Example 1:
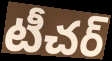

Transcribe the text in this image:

టీచర్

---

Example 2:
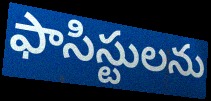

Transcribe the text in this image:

ఫాసిస్టులను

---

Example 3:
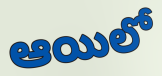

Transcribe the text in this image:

ఆయిలో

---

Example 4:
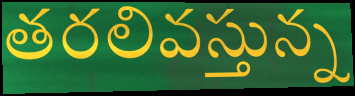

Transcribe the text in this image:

తరలివస్తున్న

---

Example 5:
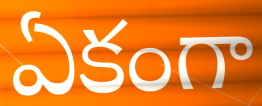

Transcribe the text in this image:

ఏకంగా